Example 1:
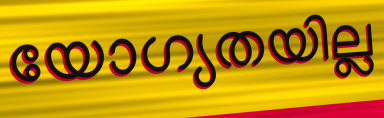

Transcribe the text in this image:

യോഗ്യതയില്ല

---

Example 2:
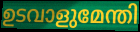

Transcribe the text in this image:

ഉടവാളുമേന്തി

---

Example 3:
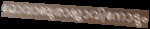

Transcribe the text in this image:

മോവാബുരാജാവിനോടും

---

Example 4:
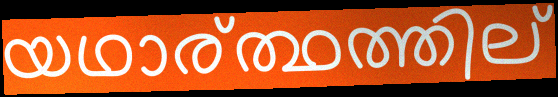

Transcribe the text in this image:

യഥാര്ത്ഥത്തില്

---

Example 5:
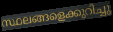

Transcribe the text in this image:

സ്ഥലങ്ങളെക്കുറിച്ചു